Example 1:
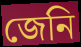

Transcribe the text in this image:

জেনি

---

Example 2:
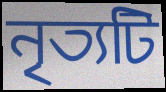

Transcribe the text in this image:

নৃত্যটি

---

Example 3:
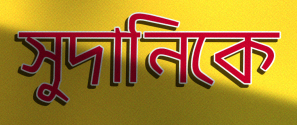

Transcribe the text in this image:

সুদানিকে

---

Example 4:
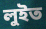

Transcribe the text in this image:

লুইত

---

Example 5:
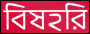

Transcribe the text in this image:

বিষহরি